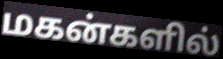
மகன்களில்